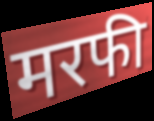
मरफी